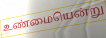
உண்மையென்று